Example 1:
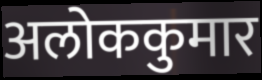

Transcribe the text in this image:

अलोककुमार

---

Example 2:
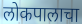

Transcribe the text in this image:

लोकपालाचा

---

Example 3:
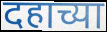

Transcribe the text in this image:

दहाच्या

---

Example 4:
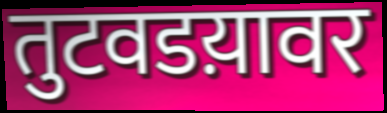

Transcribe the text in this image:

तुटवडय़ावर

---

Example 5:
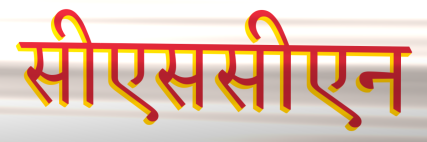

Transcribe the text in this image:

सीएससीएन